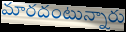
మారదంటున్నారు